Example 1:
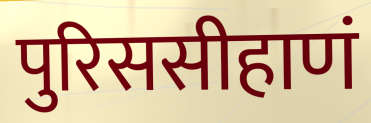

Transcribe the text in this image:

पुरिससीहाणं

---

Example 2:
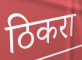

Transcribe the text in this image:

ठिकरा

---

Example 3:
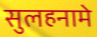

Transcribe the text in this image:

सुलहनामे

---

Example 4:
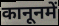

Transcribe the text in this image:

कानूनमें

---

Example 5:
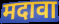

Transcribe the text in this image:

मदावा